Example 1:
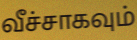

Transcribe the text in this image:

வீச்சாகவும்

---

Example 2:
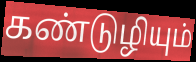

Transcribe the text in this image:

கண்டுழியும்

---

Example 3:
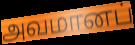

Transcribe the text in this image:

அவமானப்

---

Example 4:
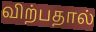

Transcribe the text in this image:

விற்பதால்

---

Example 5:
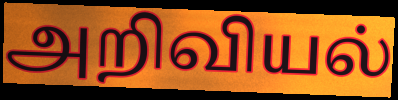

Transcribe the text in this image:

அறிவியல்